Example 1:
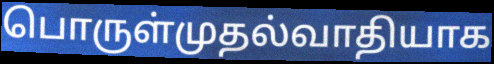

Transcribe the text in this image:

பொருள்முதல்வாதியாக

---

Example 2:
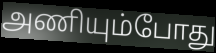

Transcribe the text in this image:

அணியும்போது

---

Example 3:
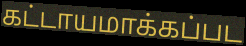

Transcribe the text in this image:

கட்டாயமாக்கப்பட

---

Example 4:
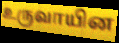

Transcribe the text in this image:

உருவாயின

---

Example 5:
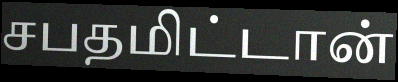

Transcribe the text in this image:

சபதமிட்டான்